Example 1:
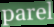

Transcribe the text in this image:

parel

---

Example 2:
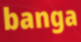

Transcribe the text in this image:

banga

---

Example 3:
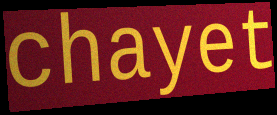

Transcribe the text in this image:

chayet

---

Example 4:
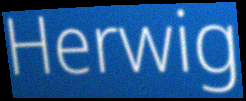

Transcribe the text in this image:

Herwig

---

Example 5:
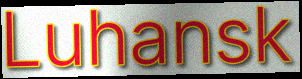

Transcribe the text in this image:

Luhansk